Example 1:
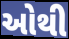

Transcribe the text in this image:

ઓથી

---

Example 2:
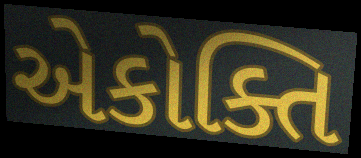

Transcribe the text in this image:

એકોક્તિ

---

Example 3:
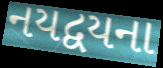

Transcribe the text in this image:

નયદ્વયના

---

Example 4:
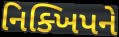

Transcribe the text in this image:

નિક્ખિપને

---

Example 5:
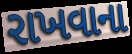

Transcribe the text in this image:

રાખવાના